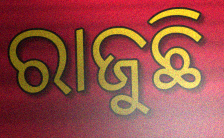
ରାଜୁଛି